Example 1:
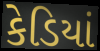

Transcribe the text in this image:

કેડિયાં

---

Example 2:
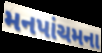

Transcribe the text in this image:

મનપાંચમના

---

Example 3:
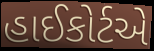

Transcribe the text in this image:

હાઈકોર્ટએ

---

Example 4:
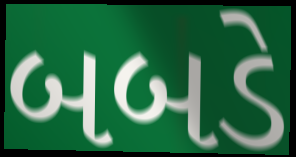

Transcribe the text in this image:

બબડે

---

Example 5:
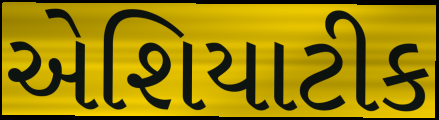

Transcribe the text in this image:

એશિયાટીક